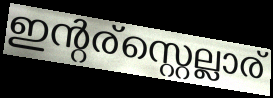
ഇന്റര്സ്റ്റെല്ലാര്